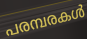
പരമ്പരകൾ